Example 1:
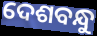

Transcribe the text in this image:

ଦେଶବନ୍ଧୁ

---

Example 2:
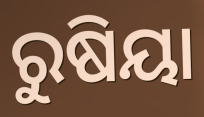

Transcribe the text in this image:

ରୁଷିୟା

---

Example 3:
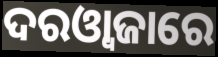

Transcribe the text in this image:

ଦରଓ୍ୱାଜାରେ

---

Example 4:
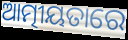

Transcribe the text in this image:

ଆତ୍ମୀୟତାରେ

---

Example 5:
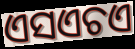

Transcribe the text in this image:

ଏସଏଚଏ